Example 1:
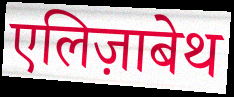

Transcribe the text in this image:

एलिज़ाबेथ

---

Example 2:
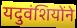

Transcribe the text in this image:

यदुवंशियोंने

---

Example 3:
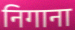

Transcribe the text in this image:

निगाना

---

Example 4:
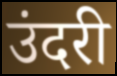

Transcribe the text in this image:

उंदरी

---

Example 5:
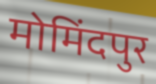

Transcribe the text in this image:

मोमिंदपुर